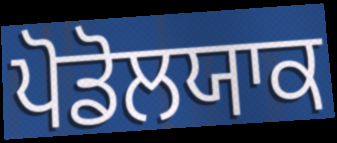
ਪੋਡੋਲਯਾਕ